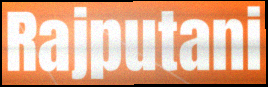
Rajputani